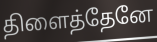
திளைத்தேனே